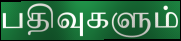
பதிவுகளும்